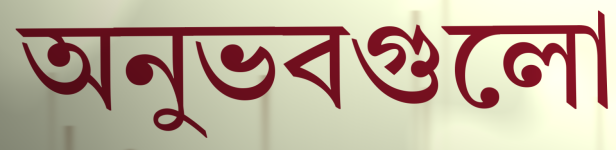
অনুভবগুলো